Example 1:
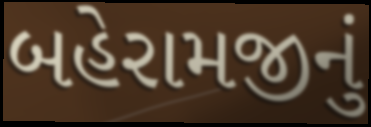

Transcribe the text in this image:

બહેરામજીનું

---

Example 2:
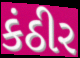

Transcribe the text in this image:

કંઠીર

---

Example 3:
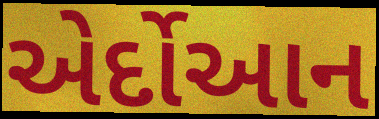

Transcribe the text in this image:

એર્દોઆન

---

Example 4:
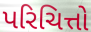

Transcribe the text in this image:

પરિચિત્તો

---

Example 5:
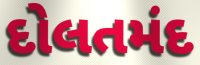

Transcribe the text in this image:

દોલતમંદ